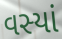
વસ્યાં